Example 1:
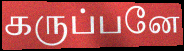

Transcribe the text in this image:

கருப்பனே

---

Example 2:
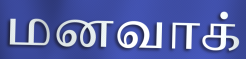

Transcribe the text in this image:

மனவாக்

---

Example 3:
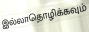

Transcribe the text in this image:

இல்லாதொழிக்கவும்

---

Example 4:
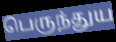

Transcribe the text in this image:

பெருந்துய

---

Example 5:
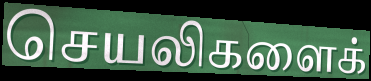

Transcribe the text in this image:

செயலிகளைக்